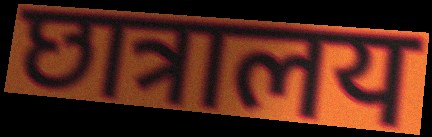
छात्रालय